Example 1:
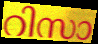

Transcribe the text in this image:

റിസാ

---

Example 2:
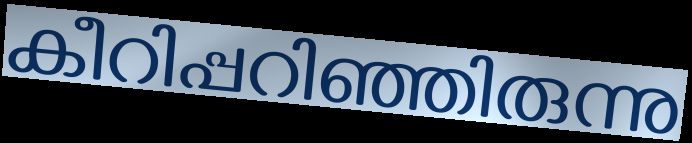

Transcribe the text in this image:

കീറിപ്പറിഞ്ഞിരുന്നു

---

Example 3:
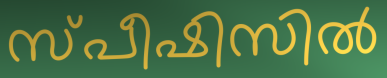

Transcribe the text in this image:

സ്പീഷിസിൽ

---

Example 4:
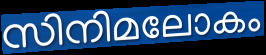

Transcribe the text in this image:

സിനിമലോകം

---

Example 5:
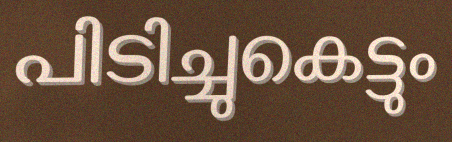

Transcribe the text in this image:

പിടിച്ചുകെട്ടും